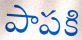
పాపకి